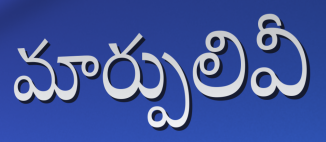
మార్పులివీ